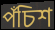
পঁচিশ